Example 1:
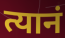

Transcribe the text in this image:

त्यानं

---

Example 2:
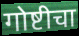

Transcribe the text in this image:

गोष्टीचा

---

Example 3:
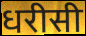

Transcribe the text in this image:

धरीसी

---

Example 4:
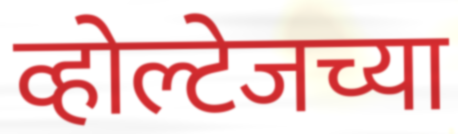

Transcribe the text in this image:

व्होल्टेजच्या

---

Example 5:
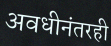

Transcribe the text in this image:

अवधीनंतरही